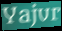
Yajur